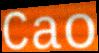
Cao